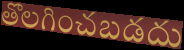
తొలగించబడదు